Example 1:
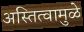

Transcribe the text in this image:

अस्तित्वामुळे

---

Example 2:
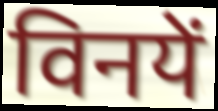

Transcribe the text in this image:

विनयें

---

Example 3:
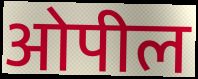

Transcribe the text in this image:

ओपील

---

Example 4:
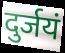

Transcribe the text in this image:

दुर्जयं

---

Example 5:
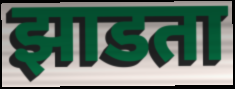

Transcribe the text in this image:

झाडता